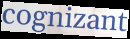
cognizant